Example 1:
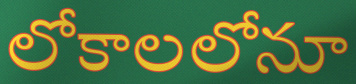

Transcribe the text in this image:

లోకాలలోనూ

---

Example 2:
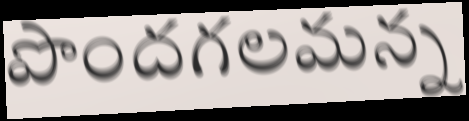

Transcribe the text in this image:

పొందగలమన్న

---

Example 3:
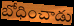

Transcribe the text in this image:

బోధించాడు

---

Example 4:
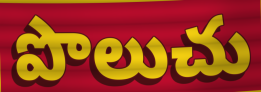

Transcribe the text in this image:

పొలుచు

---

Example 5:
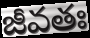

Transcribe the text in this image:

జీవతః